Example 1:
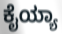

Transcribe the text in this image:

ಕೈಯ್ಯಾ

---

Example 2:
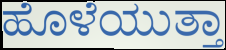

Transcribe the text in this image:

ಹೊಳೆಯುತ್ತಾ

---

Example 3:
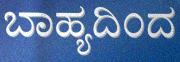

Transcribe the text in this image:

ಬಾಹ್ಯದಿಂದ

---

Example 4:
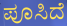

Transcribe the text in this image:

ಪೂಸಿದೆ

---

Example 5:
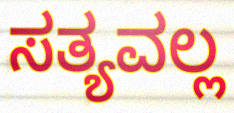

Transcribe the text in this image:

ಸತ್ಯವಲ್ಲ